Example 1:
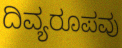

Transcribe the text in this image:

ದಿವ್ಯರೂಪವು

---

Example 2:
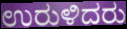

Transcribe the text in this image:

ಉರುಳಿದರು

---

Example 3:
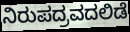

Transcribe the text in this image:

ನಿರುಪದ್ರವದಲಿಡೆ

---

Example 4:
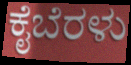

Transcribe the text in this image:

ಕೈಬೆರಳು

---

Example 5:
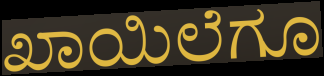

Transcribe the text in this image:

ಖಾಯಿಲೆಗೂ